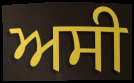
ਅਸੀ